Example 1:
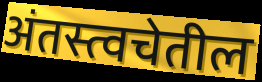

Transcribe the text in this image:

अंतस्त्वचेतील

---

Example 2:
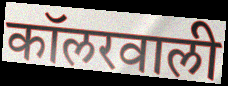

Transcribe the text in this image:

कॉलरवाली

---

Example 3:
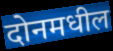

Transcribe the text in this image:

दोनमधील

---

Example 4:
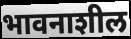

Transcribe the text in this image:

भावनाशील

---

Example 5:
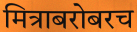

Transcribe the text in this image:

मित्राबरोबरच